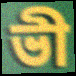
ভী